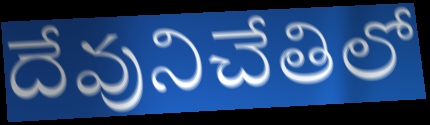
దేవునిచేతిలో